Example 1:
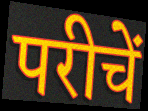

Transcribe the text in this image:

परीचें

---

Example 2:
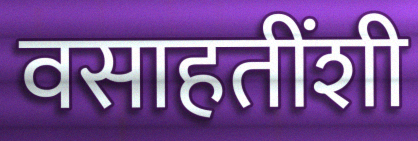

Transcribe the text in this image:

वसाहतींशी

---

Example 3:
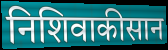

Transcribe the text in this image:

निशिवाकीसान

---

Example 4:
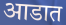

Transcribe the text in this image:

आडात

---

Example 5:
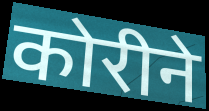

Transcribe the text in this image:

कोरीने